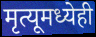
मृत्यूमध्येही